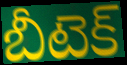
బీటెక్